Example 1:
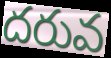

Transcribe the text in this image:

దరువ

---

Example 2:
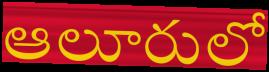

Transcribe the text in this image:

ఆలూరులో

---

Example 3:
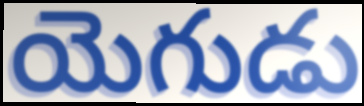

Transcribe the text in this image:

యెగుడు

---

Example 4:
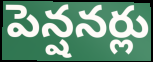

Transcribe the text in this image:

పెన్షనర్లు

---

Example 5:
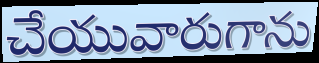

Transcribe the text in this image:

చేయువారుగాను